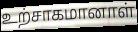
உற்சாகமானாள்